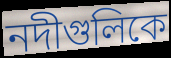
নদীগুলিকে